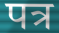
पत्र